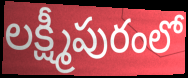
లక్ష్మీపురంలో